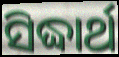
ସିଦ୍ଧାର୍ଥ